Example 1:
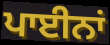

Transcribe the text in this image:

ਪਾਈਨਾਂ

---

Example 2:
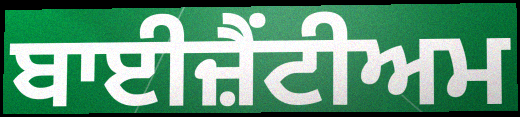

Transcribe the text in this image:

ਬਾਈਜ਼ੈਂਟੀਅਮ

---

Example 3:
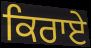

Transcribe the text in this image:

ਕਿਰਾਏ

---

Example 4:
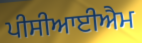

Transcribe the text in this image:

ਪੀਸੀਆਈਐਮ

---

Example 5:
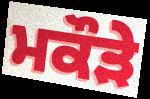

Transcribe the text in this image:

ਮਕੌੜੇ